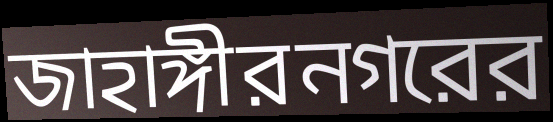
জাহাঙ্গীরনগরের